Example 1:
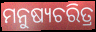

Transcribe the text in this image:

ମନୁଷ୍ୟଚରିତ୍ର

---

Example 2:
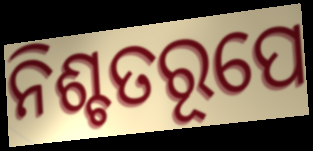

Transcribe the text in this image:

ନିଶ୍ଚତରୂପେ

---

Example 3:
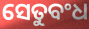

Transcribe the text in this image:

ସେତୁବଂଧ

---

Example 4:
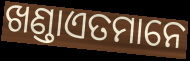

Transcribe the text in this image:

ଖଣ୍ଡାଏତମାନେ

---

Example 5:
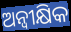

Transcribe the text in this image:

ଅନ୍ୱୀକ୍ଷିକ